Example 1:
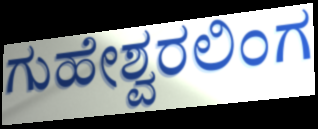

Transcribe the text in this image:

ಗುಹೇಶ್ವರಲಿಂಗ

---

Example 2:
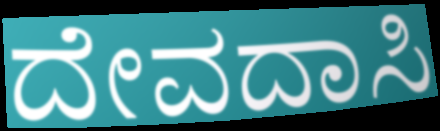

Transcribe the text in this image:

ದೇವದಾಸಿ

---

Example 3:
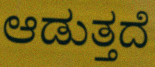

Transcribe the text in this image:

ಆಡುತ್ತದೆ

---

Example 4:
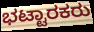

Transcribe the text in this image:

ಭಟ್ಟಾರಕರು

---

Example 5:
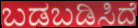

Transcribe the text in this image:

ಬಡಬಡಿಸಿದೆ